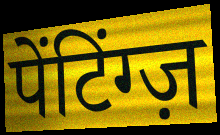
पेंटिंग्ज़